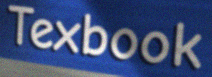
Texbook